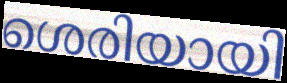
ശെരിയായി